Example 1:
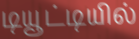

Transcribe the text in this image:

டியூட்டியில்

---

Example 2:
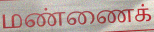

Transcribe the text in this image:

மண்ணைக்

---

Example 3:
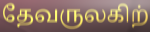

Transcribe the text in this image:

தேவருலகிற்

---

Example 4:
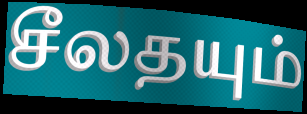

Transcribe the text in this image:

சீலதயும்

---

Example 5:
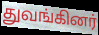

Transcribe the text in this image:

துவங்கினர்